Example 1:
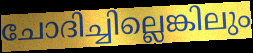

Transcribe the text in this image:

ചോദിച്ചില്ലെങ്കിലും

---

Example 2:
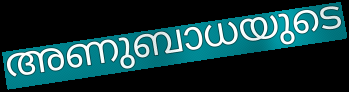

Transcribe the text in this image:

അണുബാധയുടെ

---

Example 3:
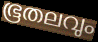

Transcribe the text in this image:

ഭൂതലവും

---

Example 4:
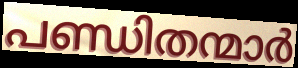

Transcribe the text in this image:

പണ്ഡിതന്മാർ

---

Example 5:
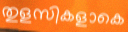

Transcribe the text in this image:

തുളസികളാകെ